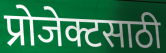
प्रोजेक्टसाठी